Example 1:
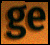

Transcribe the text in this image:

ge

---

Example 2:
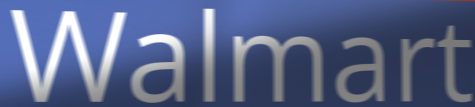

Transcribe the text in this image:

Walmart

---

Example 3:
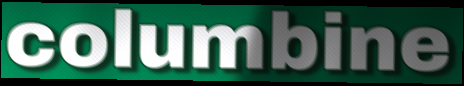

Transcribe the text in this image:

columbine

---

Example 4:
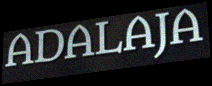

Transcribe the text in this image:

ADALAJA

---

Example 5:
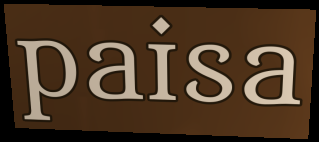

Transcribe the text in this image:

paisa